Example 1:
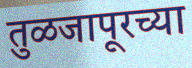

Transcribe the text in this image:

तुळजापूरच्या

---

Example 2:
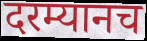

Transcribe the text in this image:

दरम्यानच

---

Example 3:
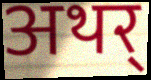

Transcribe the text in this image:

अथर्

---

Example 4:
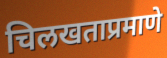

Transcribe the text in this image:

चिलखताप्रमाणे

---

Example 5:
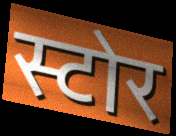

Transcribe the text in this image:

स्टोर